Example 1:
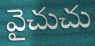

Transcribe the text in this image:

వైచుచు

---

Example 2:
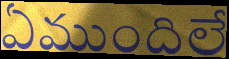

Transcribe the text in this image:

ఏముందిలే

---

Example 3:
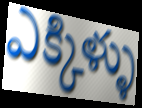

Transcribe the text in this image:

ఎక్కిళ్ళు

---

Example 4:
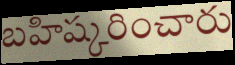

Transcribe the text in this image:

బహిష్కరించారు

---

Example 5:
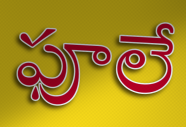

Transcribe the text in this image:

ఫూలే